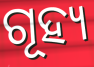
ଗୂହ୍ୟ